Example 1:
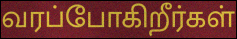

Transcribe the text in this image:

வரப்போகிறீர்கள்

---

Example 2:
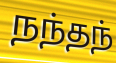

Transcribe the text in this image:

நந்தந்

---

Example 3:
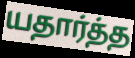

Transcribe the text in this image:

யதார்த்த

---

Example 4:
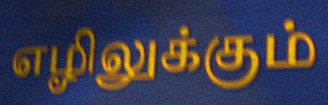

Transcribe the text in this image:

எழிலுக்கும்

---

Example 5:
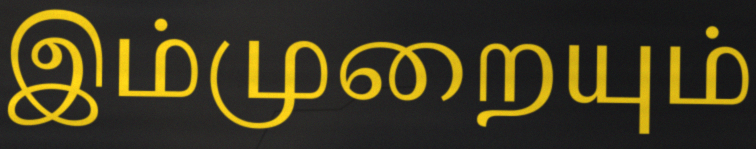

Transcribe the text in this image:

இம்முறையும்